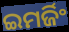
ଇମର୍ଜିଂ